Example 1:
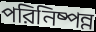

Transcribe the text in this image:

পরিনিষ্পন্ন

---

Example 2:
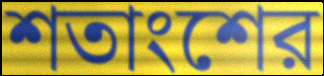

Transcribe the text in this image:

শতাংশের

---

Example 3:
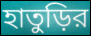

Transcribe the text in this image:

হাতুড়ির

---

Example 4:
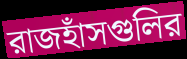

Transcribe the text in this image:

রাজহাঁসগুলির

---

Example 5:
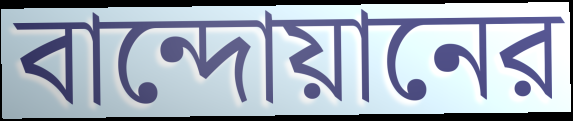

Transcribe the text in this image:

বান্দোয়ানের